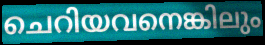
ചെറിയവനെങ്കിലും